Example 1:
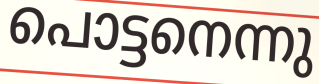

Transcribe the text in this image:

പൊട്ടനെന്നു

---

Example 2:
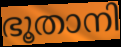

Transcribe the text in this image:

ഭൂതാനി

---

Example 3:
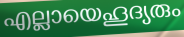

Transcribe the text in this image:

എല്ലായെഹൂദ്യരും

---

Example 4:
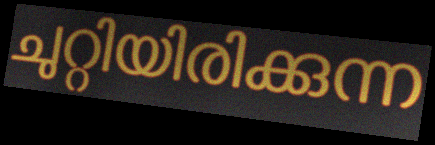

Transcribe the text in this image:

ചുറ്റിയിരിക്കുന്ന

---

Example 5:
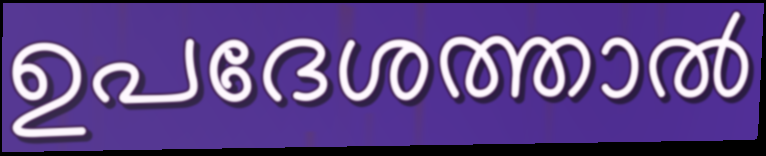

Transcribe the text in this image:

ഉപദേശത്താൽ